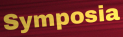
Symposia